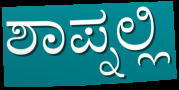
ಶಾಪ್ನಲ್ಲಿ